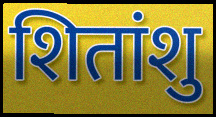
शितांशु